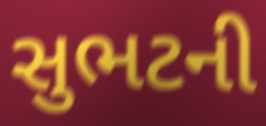
સુભટની